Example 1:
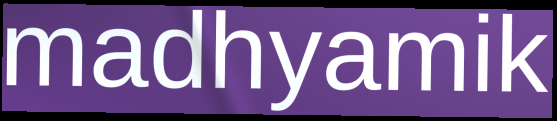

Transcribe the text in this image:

madhyamik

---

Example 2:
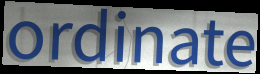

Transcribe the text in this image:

ordinate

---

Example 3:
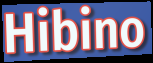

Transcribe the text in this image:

Hibino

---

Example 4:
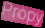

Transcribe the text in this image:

Propy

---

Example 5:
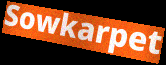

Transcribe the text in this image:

Sowkarpet